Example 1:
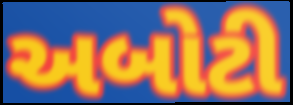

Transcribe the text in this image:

અબોટી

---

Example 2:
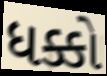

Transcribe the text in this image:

ધક્કો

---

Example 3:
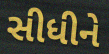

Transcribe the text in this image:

સીધીને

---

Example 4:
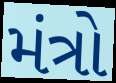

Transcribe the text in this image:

મંત્રો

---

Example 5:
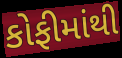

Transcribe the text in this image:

કોફીમાંથી